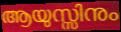
ആയുസ്സിനും